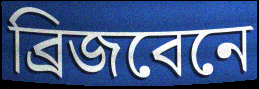
ব্রিজবেনে